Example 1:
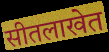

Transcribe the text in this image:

सीतलाखेत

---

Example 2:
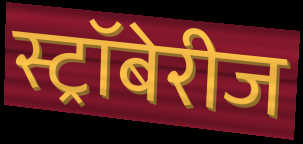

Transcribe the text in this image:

स्ट्रॉबेरीज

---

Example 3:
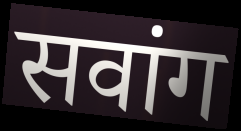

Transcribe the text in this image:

सवांग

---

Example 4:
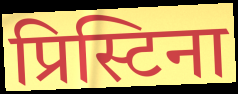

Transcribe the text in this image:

प्रिस्टिना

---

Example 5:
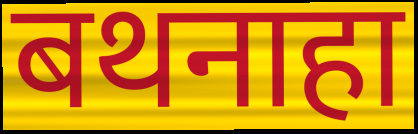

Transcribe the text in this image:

बथनाहा